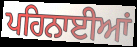
ਪਹਿਨਾਈਆਂ